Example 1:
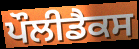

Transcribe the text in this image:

ਪੌਲੀਡੈਕਸ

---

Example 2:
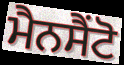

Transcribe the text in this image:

ਮੈਨਸੈਂਟੋ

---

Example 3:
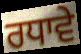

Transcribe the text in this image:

ਰਧਾਵੇ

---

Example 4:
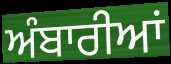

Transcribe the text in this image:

ਅੰਬਾਰੀਆਂ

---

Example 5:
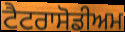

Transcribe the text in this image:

ਟੈਟਰਾਸੋਡੀਅਮ